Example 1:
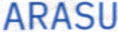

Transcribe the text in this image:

ARASU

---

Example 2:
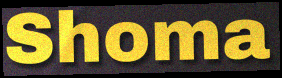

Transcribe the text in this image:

Shoma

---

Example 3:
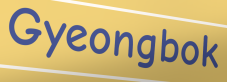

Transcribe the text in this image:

Gyeongbok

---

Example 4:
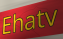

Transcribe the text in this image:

Ehatv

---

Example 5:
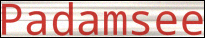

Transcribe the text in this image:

Padamsee